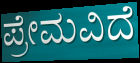
ಪ್ರೇಮವಿದೆ